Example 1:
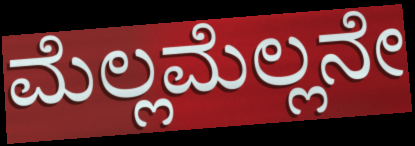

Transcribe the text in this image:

ಮೆಲ್ಲಮೆಲ್ಲನೇ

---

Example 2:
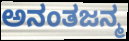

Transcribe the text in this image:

ಅನಂತಜನ್ಮ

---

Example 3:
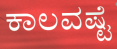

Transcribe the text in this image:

ಕಾಲವಷ್ಟೆ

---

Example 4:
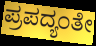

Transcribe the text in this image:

ಪ್ರಪದ್ಯಂತೇ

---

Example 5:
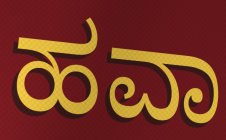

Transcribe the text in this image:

ಹವಾ